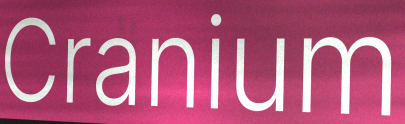
Cranium